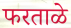
फरताळे